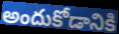
అందుకోడానికి